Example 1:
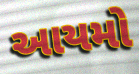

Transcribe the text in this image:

આયમો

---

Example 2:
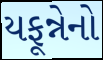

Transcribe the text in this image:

યફૂન્નેનો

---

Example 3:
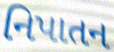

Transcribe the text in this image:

નિપાતન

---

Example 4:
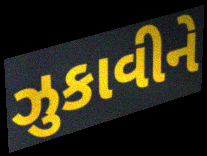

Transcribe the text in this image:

ઝુકાવીને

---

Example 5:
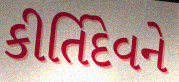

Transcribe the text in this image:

કીર્તિદેવને